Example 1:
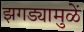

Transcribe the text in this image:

झगड्यामुळें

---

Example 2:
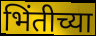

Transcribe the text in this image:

भिंतीच्या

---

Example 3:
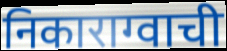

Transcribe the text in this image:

निकाराग्वाची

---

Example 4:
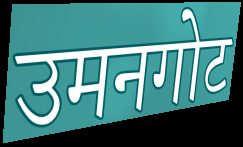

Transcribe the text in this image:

उमनगोट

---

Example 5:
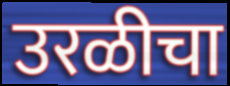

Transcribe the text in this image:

उरळीचा